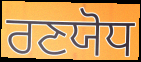
ਰਣਯੋਧ